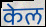
केल